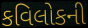
કવિલોકની